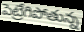
పెట్రేగిపోతున్న